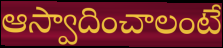
ఆస్వాదించాలంటే